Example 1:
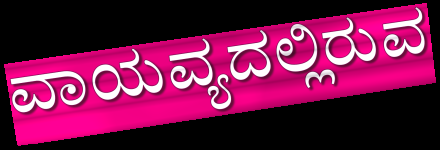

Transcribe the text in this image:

ವಾಯವ್ಯದಲ್ಲಿರುವ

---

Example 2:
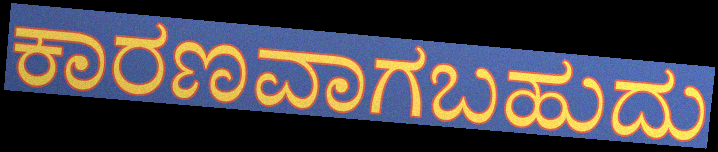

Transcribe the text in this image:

ಕಾರಣವಾಗಬಹುದು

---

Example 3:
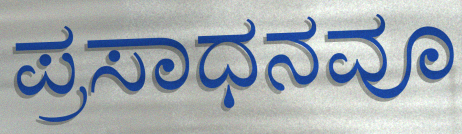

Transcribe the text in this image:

ಪ್ರಸಾಧನವೂ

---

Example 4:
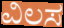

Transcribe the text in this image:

ವಿಲಸ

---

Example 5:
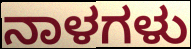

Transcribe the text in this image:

ನಾಳಗಳು